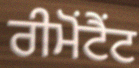
ਰੀਮੋਂਟੈਂਟ